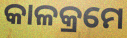
କାଳକ୍ରମେ